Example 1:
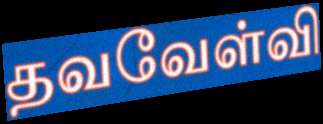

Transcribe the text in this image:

தவவேள்வி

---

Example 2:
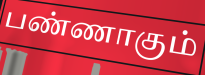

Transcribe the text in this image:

பண்ணாகும்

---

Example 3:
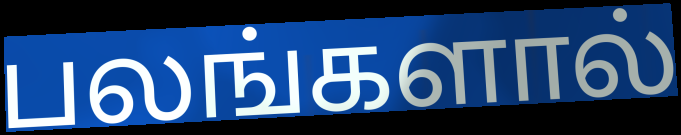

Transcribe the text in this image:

பலங்களால்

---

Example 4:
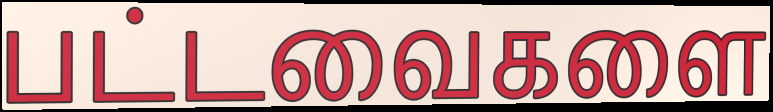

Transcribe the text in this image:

பட்டவைகளை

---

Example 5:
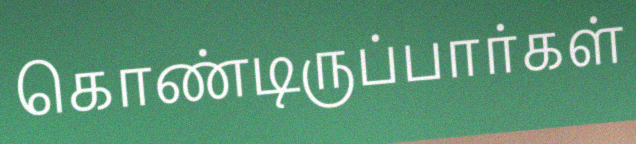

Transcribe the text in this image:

கொண்டிருப்பார்கள்